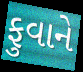
ફુવાને